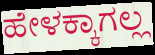
ಹೇಳಕ್ಕಾಗಲ್ಲ